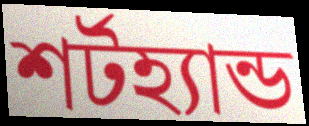
শর্টহ্যান্ড